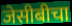
जेसीबीचा